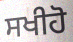
ਸਖੀਹੋ